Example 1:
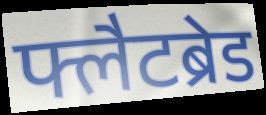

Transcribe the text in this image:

फ्लैटब्रेड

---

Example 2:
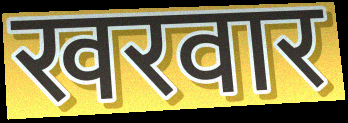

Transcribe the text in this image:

खरवार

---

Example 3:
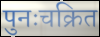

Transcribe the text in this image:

पुनःचक्रित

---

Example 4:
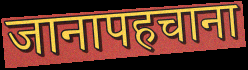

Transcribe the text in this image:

जानापहचाना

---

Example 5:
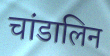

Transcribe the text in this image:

चांडालिन